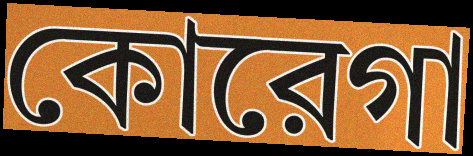
কোরেগা